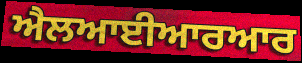
ਐਲਆਈਆਰਆਰ